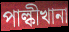
পাল্কীখানা